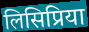
लिसिप्रिया